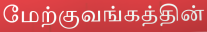
மேற்குவங்கத்தின்